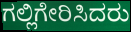
ಗಲ್ಲಿಗೇರಿಸಿದರು